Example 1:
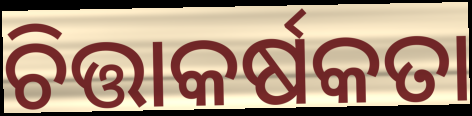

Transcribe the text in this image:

ଚିତ୍ତାକର୍ଷକତା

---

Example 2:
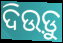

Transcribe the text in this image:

ଦିଉଡ଼ୁ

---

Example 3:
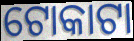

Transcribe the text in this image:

ଟୋକାଟା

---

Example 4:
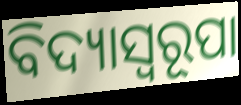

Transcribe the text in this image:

ବିଦ୍ୟାସ୍ୱରୂପା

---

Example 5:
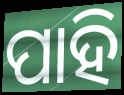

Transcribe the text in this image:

ପାହି